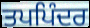
ਤਪਪਿੰਦਰ